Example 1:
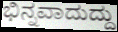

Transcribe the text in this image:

ಭಿನ್ನವಾದುದ್ದು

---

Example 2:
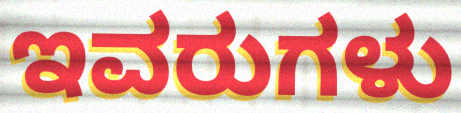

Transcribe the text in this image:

ಇವರುಗಳು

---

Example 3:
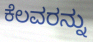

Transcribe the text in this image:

ಕೆಲವರನ್ನು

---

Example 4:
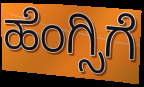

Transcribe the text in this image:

ಹೆಂಗ್ಸಿಗೆ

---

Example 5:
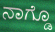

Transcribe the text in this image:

ನಾಗ್ಡೊ